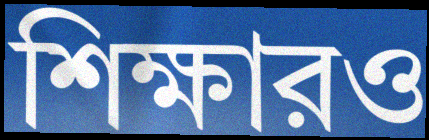
শিক্ষারও